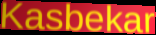
Kasbekar